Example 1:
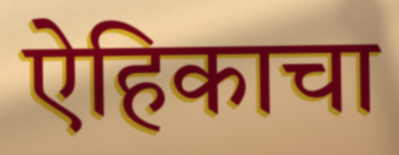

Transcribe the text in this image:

ऐहिकाचा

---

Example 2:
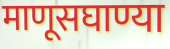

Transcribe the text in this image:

माणूसघाण्या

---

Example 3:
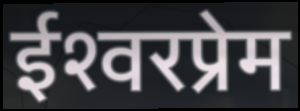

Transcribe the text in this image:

ईश्वरप्रेम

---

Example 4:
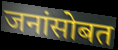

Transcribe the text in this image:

जनांसोबत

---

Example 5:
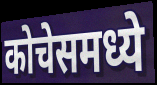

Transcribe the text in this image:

कोचेसमध्ये